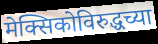
मेक्सिकोविरुद्धच्या